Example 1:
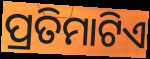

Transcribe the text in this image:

ପ୍ରତିମାଟିଏ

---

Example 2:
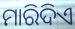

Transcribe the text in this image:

ମାରିଦିଏ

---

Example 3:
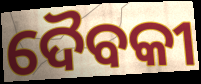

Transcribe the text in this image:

ଦୈବକୀ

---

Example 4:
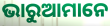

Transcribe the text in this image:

ଭାରୁଆମାନେ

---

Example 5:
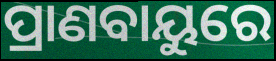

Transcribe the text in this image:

ପ୍ରାଣବାୟୁରେ